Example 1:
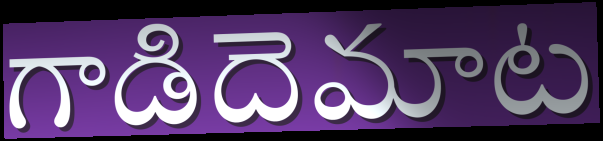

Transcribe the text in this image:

గాడిదెమాట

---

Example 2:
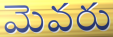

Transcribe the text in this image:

మెవరు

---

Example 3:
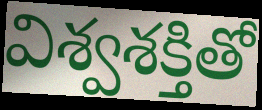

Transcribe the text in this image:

విశ్వశక్తితో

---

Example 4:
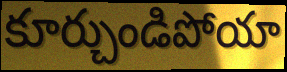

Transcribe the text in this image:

కూర్చుండిపోయా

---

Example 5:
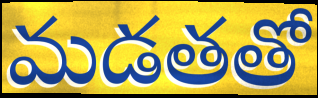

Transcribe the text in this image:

మడతతో